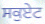
ਸਕੁਏਟ